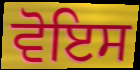
ਵੋਇਸ